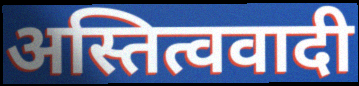
अस्तित्ववादी